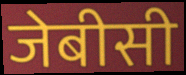
जेबीसी